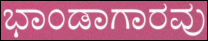
ಭಾಂಡಾಗಾರವು